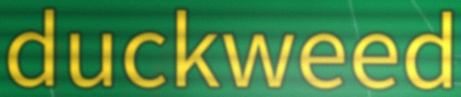
duckweed